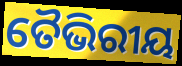
ତୈଭିରୀୟ